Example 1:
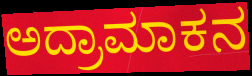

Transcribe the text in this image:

ಅದ್ರಾಮಾಕನ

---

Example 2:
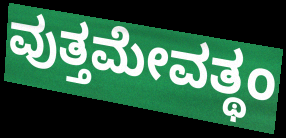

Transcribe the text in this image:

ವುತ್ತಮೇವತ್ಥಂ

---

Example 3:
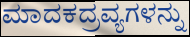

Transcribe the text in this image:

ಮಾದಕದ್ರವ್ಯಗಳನ್ನು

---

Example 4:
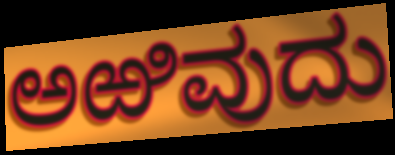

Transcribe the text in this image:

ಅಱಿವುದು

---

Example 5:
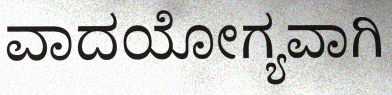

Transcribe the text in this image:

ವಾದಯೋಗ್ಯವಾಗಿ